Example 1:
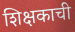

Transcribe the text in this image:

शिक्षकाची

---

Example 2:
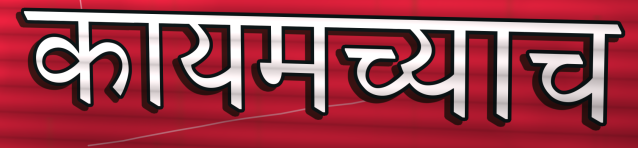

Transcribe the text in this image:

कायमच्याच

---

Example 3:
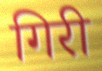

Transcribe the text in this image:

गिरी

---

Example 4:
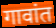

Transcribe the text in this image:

गावांत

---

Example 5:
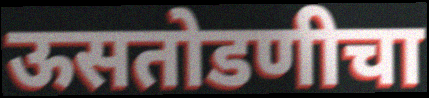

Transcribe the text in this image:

ऊसतोडणीचा